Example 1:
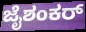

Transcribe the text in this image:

ಜೈಶಂಕರ್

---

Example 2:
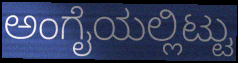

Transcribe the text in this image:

ಅಂಗೈಯಲ್ಲಿಟ್ಟು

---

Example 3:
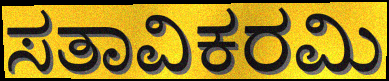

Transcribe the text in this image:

ಸತಾವಿಕರಮಿ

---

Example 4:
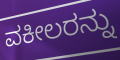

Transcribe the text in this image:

ವಕೀಲರನ್ನು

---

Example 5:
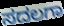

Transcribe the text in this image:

ಸದಲಗಾ